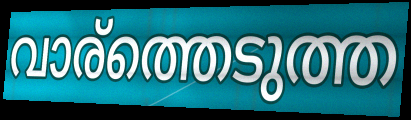
വാര്ത്തെടുത്ത